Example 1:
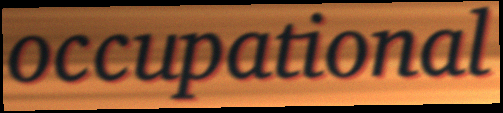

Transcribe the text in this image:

occupational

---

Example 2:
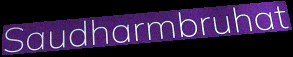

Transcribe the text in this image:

Saudharmbruhat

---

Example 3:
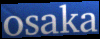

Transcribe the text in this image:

osaka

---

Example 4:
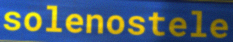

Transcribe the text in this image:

solenostele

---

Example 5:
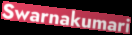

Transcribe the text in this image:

Swarnakumari